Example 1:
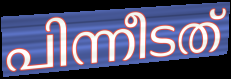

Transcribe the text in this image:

പിന്നീടത്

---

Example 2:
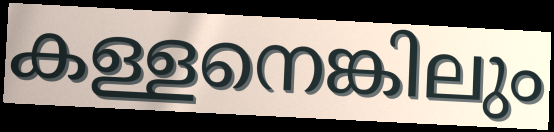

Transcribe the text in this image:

കള്ളനെങ്കിലും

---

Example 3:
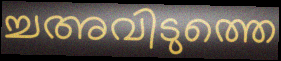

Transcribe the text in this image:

ച്ചഅവിടുത്തെ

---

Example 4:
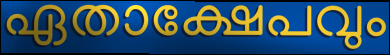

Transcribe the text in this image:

ഏതാക്ഷേപവും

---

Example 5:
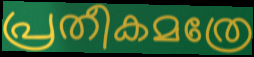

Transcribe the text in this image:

പ്രതീകമത്രേ